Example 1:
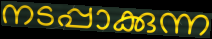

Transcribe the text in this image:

നടപ്പാക്കുന്ന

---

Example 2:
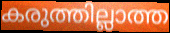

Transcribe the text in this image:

കരുത്തില്ലാത്ത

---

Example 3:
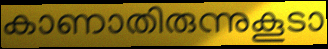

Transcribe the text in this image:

കാണാതിരുന്നുകൂടാ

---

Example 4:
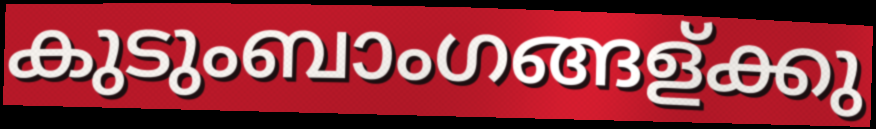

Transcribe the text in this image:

കുടുംബാംഗങ്ങള്ക്കു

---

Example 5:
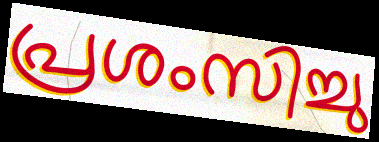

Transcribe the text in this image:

പ്രശംസിച്ചു